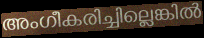
അംഗീകരിച്ചില്ലെങ്കിൽ